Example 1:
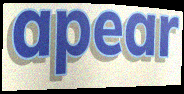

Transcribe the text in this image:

apear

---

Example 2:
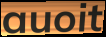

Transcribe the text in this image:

auoit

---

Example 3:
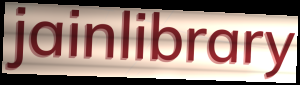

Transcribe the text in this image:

jainlibrary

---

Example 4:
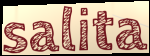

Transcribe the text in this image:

salita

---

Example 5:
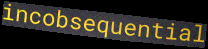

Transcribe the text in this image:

incobsequential